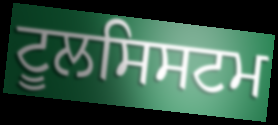
ਟੂਲਸਿਸਟਮ